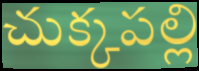
చుక్కపల్లి